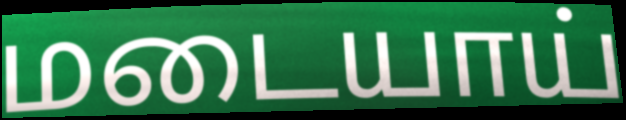
மடையாய்